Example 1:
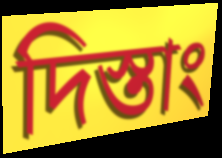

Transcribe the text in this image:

দিস্তাং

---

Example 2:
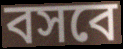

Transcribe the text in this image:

বসবে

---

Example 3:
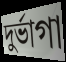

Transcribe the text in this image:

দুর্ভাগা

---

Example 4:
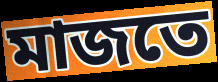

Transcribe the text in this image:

মাজতে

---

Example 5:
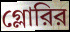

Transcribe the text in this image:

গ্লোরির